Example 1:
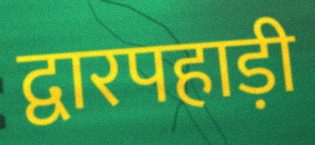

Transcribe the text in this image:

द्वारपहाड़ी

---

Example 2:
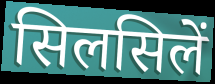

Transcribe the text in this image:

सिलसिलें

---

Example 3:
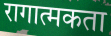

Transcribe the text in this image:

रागात्मकता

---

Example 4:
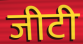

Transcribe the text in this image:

जीटी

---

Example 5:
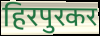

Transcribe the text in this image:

हिरपुरकर